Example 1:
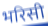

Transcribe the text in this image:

भरिसी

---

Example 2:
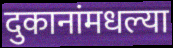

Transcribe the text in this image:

दुकानांमधल्या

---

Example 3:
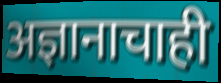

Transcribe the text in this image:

अज्ञानाचाही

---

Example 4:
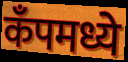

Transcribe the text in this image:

कॅंपमध्ये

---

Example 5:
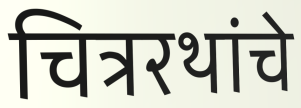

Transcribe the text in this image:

चित्ररथांचे